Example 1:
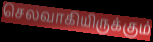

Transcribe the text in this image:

செலவாகியிருக்கும்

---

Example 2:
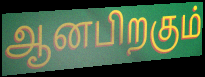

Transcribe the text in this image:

ஆனபிறகும்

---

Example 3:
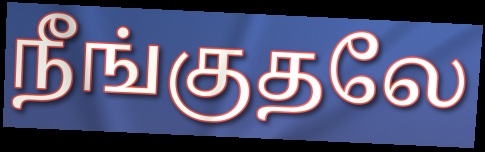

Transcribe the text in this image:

நீங்குதலே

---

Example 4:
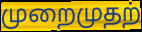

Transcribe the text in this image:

முறைமுதற்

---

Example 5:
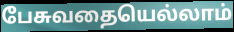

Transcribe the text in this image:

பேசுவதையெல்லாம்